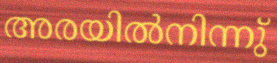
അരയിൽനിന്നു്